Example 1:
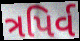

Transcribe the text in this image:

ત્રપિર્વ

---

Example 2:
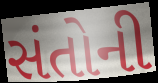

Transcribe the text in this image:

સંતોની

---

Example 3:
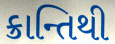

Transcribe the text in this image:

ક્રાન્તિથી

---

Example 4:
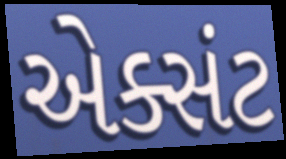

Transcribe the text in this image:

એક્સંટ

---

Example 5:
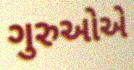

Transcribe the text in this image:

ગુરુઓએ